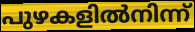
പുഴകളിൽനിന്ന്